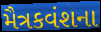
મૈત્રકવંશના